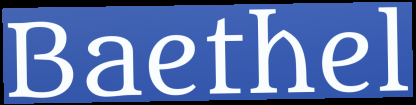
Baethel